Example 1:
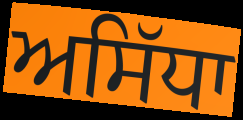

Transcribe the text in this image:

ਅਸਿੱਧਾ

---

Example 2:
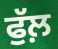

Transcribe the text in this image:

ਫੁੱਲ਼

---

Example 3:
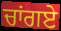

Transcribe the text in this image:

ਚਾਂਗਏ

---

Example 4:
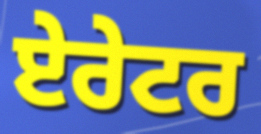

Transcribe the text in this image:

ਏਰੇਟਰ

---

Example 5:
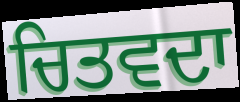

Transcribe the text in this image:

ਚਿਤਵਦਾ